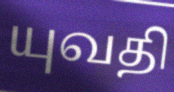
யுவதி